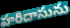
హరిదాసును